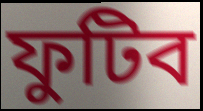
ফুটিব